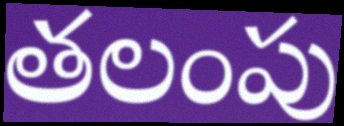
తలంపు